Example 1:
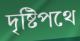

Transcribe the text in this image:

দৃষ্টিপথে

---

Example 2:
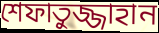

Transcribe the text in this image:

শেফাতুজ্জাহান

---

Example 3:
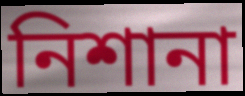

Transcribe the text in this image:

নিশানা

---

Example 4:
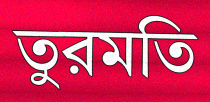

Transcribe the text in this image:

তুরমতি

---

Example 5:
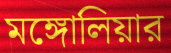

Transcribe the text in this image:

মঙ্গোলিয়ার